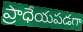
ప్రాధేయపడగా